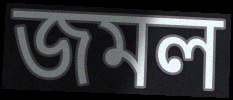
জমল